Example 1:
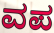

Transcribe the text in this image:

ವಪ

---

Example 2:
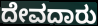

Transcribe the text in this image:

ದೇವದಾರು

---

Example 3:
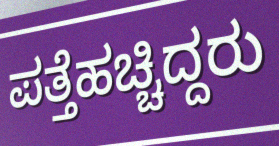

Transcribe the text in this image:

ಪತ್ತೆಹಚ್ಚಿದ್ದರು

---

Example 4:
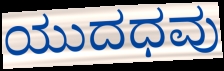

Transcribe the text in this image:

ಯುದಧವು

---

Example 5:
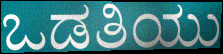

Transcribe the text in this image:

ಒಡತಿಯು